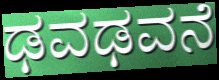
ಢವಢವನೆ